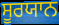
ਸੂਰਯਾਨ